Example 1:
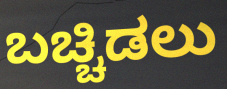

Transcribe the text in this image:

ಬಚ್ಚಿಡಲು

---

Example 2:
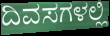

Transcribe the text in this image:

ದಿವಸಗಳಲ್ಲಿ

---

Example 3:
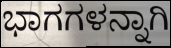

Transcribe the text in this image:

ಭಾಗಗಳನ್ನಾಗಿ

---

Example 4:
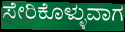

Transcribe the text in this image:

ಸೇರಿಕೊಳ್ಳುವಾಗ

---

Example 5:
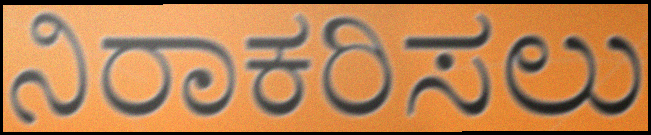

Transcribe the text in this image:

ನಿರಾಕರಿಸಲು